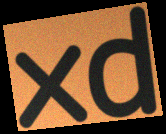
xd